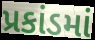
પ્રકાંડમાં